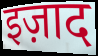
इज़ाद